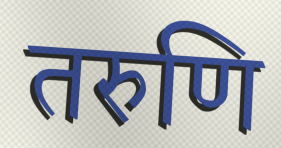
तरुणि